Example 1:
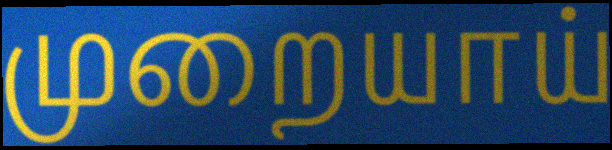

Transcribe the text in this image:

முறையாய்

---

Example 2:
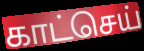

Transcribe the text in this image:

காட்செய்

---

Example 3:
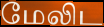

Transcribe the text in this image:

மேலிட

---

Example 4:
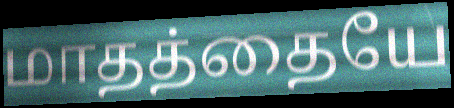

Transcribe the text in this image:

மாதத்தையே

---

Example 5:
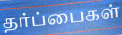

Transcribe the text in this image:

தர்ப்பைகள்